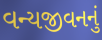
વન્યજીવનનું